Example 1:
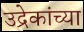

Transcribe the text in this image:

उद्रेकांच्या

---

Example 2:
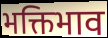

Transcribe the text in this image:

भक्तिभाव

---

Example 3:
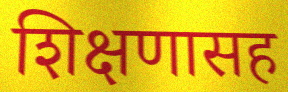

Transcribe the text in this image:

शिक्षणासह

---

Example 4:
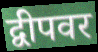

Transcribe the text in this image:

द्वीपवर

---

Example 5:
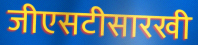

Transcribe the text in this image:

जीएसटीसारखी